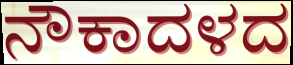
ನೌಕಾದಳದ